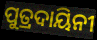
ପୁତ୍ରଦାୟିନୀ